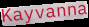
Kayvanna